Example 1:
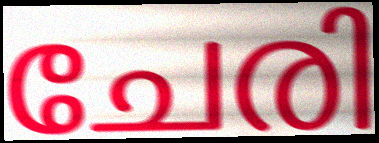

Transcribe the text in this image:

ചേരി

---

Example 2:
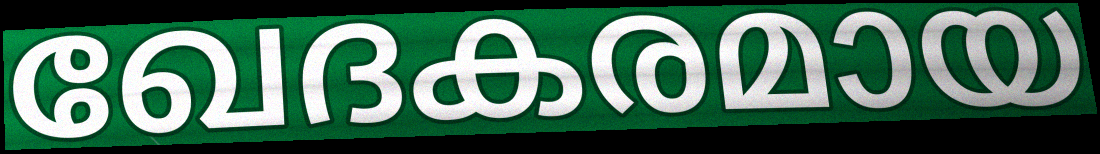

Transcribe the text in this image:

ഖേദകരമായ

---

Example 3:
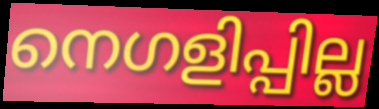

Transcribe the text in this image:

നെഗളിപ്പില്ല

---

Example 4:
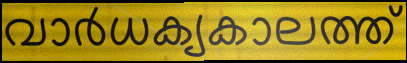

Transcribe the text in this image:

വാർധക്യകാലത്ത്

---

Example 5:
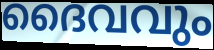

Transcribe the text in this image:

ദൈവവും